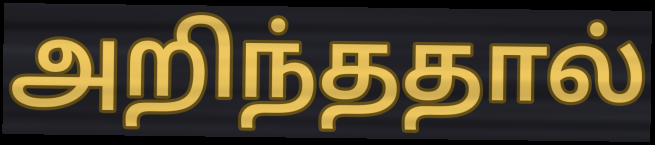
அறிந்ததால்